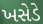
ખસેડે